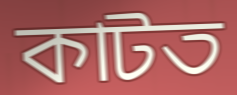
কাটত